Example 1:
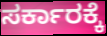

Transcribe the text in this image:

ಸರ್ಕಾರಕ್ಕೆ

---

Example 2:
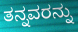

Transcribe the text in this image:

ತನ್ನವರನ್ನು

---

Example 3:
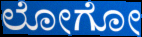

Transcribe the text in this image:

ಲೋಗೋ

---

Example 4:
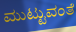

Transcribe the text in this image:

ಮುಟ್ಟುವಂತೆ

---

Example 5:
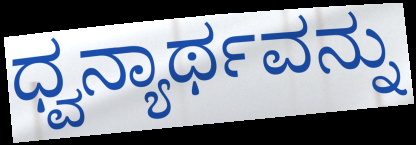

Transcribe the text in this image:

ಧ್ವನ್ಯಾರ್ಥವನ್ನು